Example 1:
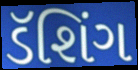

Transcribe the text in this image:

ડૅશિંગ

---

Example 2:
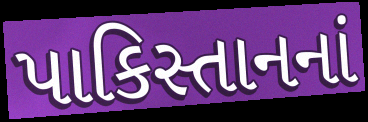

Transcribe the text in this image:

પાકિસ્તાનનાં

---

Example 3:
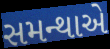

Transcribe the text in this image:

સમન્થાએ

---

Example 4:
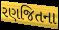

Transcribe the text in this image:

રણજિતના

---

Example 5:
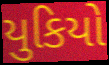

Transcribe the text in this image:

યુકિયો